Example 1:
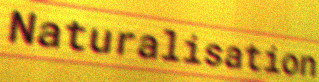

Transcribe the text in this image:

Naturalisation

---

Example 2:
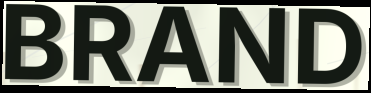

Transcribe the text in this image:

BRAND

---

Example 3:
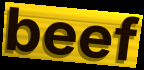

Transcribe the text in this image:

beef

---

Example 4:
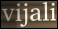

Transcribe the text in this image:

vijali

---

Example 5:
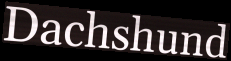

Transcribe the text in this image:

Dachshund